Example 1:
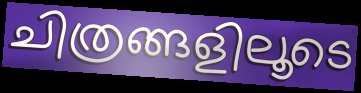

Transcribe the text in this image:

ചിത്രങ്ങളിലൂടെ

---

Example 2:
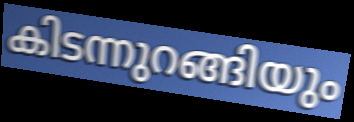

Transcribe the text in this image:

കിടന്നുറങ്ങിയും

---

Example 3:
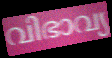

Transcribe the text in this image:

വിഭാവ്യ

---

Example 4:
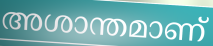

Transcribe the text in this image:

അശാന്തമാണ്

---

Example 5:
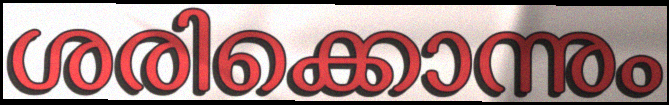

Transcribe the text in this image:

ശരിക്കൊന്നും